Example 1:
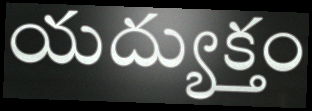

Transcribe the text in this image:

యద్యుక్తం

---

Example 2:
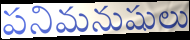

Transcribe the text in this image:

పనిమనుషులు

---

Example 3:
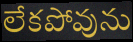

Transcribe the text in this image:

లేకపోవును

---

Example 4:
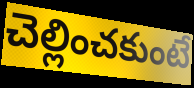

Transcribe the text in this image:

చెల్లించకుంటే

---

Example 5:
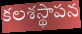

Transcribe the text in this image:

కలశస్థాపన